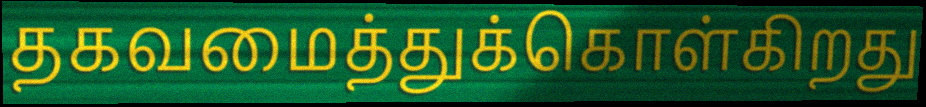
தகவமைத்துக்கொள்கிறது